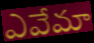
ఎవేమా